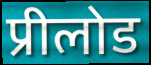
प्रीलोड